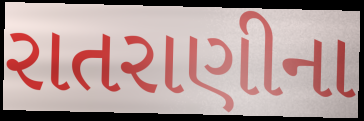
રાતરાણીના